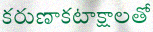
కరుణాకటాక్షాలతో